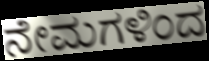
ನೇಮಗಳಿಂದ